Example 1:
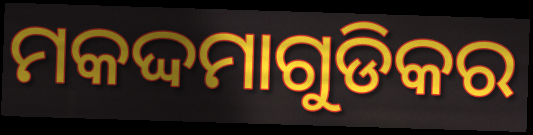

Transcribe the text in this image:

ମକଦ୍ଦମାଗୁଡିକର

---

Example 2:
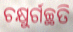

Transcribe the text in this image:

ଚକ୍ଷୁର୍ଗଚ୍ଛତି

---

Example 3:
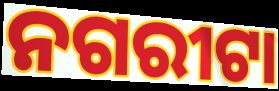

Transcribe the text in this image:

ନଗରୀଟା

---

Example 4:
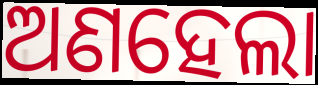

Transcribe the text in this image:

ଅଣହେଲା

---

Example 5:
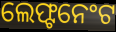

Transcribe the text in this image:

ଲେଫ୍ଟନେଂଟ